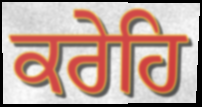
ਕਰੇਹਿ